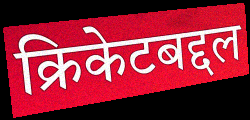
क्रिकेटबद्दल